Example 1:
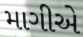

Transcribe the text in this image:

માગીએ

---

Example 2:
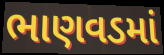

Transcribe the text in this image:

ભાણવડમાં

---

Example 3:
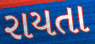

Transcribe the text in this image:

રાયતા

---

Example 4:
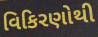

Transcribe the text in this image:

વિકિરણોથી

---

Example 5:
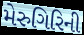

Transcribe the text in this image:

મેરુગિરિની